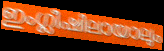
ഇംഗ്ലീഷിലായാലും